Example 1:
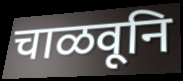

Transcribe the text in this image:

चाळवूनि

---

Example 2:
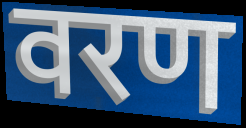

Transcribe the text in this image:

वरण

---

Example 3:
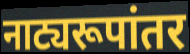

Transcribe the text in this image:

नाट्यरूपांतर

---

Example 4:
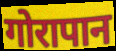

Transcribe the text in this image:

गोरापान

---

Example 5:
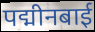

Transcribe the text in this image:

पद्मीनबाई